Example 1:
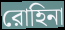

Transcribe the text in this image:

রোহিনা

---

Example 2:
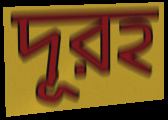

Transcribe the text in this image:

দূরহ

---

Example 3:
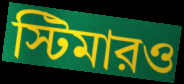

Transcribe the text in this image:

স্টিমারও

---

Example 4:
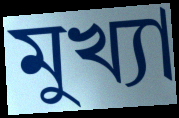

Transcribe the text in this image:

মুখ্যা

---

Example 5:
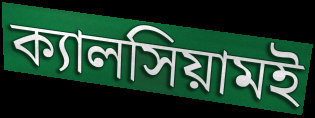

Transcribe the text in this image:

ক্যালসিয়ামই